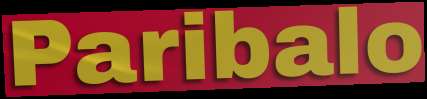
Paribalo